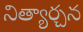
నిత్యార్చన